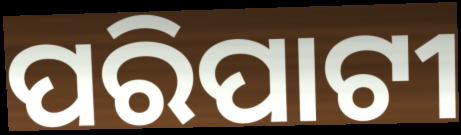
ପରିପାଟୀ